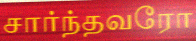
சார்ந்தவரோ